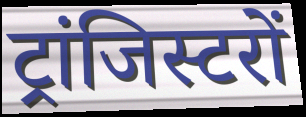
ट्रांजिस्टरों